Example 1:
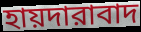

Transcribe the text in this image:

হায়দারাবাদ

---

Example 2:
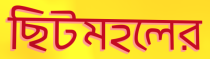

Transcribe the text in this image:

ছিটমহলের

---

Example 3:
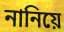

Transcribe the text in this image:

নানিয়ে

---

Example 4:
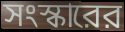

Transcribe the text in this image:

সংস্কারের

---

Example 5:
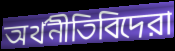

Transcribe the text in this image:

অর্থনীতিবিদেরা